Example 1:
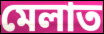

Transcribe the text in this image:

মেলাত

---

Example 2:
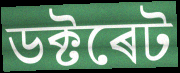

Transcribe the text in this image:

ডক্টৰেট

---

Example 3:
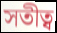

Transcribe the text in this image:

সতীত্ব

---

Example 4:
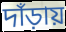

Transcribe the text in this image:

দাঁড়ায়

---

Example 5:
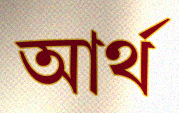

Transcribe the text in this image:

আৰ্থ